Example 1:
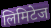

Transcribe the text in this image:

लिमिटेज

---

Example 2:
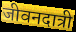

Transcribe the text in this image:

जीवनदात्री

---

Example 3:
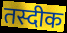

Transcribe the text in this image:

तस्‍दीक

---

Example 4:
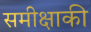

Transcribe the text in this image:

समीक्षाकी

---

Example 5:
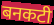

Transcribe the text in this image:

बनकटी